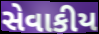
સેવાકીય